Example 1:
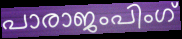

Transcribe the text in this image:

പാരാജംപിംഗ്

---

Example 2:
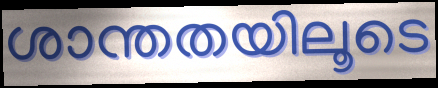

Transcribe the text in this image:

ശാന്തതയിലൂടെ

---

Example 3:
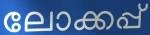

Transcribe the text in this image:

ലോക്കപ്പ്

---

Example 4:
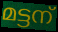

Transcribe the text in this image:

മട്ടന്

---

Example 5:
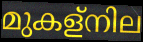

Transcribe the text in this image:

മുകള്നില